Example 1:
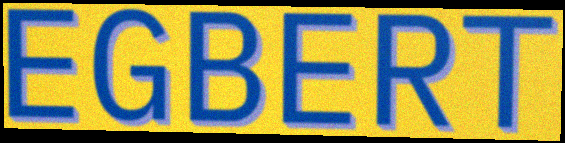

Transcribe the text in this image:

EGBERT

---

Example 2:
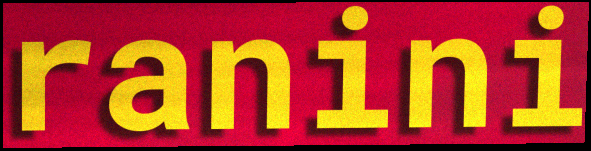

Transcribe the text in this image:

ranini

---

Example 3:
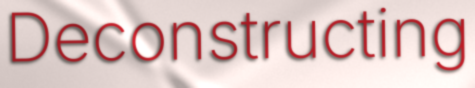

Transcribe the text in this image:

Deconstructing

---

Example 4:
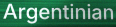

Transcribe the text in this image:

Argentinian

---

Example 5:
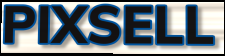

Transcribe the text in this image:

PIXSELL